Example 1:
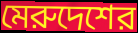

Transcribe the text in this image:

মেরুদেশের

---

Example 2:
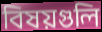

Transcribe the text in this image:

বিষয়গুলি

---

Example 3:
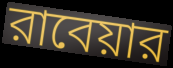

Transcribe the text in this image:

রাবেয়ার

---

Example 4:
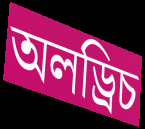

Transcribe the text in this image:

অলড্রিচ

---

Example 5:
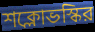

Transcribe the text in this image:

শক্লোভস্কির